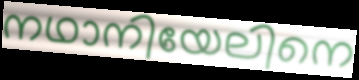
നഥാനിയേലിനെ